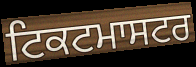
ਟਿਕਟਮਾਸਟਰ